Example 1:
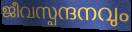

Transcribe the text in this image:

ജീവസ്പന്ദനവും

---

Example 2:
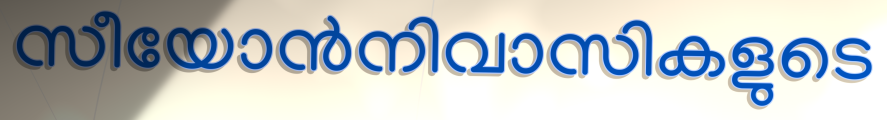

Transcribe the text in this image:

സീയോൻനിവാസികളുടെ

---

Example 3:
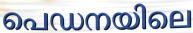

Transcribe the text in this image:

പെഡനയിലെ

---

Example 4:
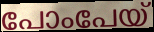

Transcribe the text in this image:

പോംപേയ്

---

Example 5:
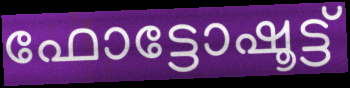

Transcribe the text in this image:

ഫോട്ടോഷൂട്ട്